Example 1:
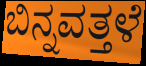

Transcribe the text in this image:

ಬಿನ್ನವತ್ತಳೆ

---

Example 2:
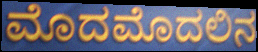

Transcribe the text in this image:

ಮೊದಮೊದಲಿನ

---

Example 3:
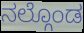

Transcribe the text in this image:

ನಲ್ಗೊಂಡ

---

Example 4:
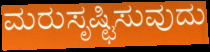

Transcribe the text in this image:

ಮರುಸೃಷ್ಟಿಸುವುದು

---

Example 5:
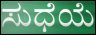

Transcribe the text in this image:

ಸುಧೆಯೆ